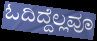
ಓದಿದ್ದೆಲ್ಲವೂ